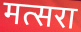
मत्सरा